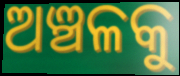
ଅଞ୍ଚଳକୁ